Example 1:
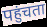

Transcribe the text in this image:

पहुंचता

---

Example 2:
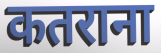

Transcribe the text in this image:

कतराना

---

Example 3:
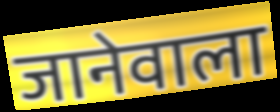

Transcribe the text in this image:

जानेवाला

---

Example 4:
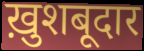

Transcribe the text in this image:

ख़ुशबूदार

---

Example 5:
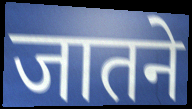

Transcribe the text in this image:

जातने